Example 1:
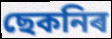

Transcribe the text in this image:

ছেকনিৰ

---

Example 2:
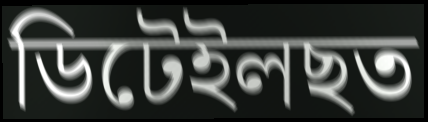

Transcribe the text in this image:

ডিটেইলছত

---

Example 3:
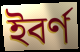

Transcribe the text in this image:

ইবৰ্ণ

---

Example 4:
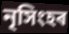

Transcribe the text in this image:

নৃসিংহৰ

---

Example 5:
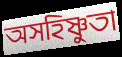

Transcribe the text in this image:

অসহিষ্ণুতা